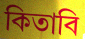
কিতাবি